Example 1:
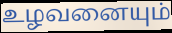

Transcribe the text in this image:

உழவனையும்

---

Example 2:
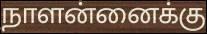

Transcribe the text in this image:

நாளன்னைக்கு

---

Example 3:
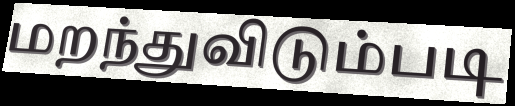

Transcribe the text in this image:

மறந்துவிடும்படி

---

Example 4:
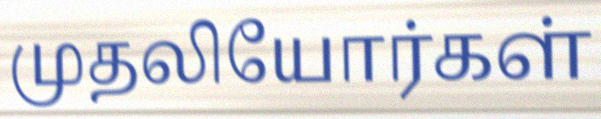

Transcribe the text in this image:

முதலியோர்கள்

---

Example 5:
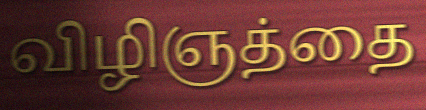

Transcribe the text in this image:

விழிஞத்தை